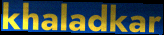
khaladkar